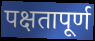
पक्षतापूर्ण